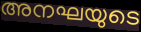
അനഘയുടെ